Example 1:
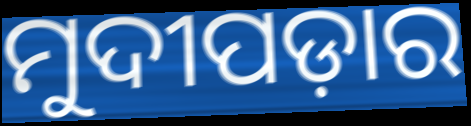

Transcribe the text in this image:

ମୁଦୀପଡ଼ାର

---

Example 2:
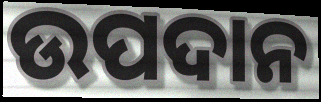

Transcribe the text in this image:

ଉପଦାନ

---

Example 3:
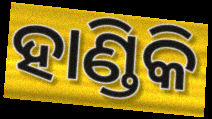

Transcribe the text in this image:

ହାଣ୍ଡିକି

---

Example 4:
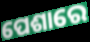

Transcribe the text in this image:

ପେଶାରେ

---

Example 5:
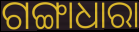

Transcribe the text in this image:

ଗଙ୍ଗାଧାରା